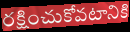
రక్షించుకోవటానికి